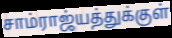
சாம்ராஜ்யத்துக்குள்